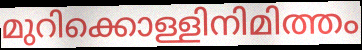
മുറിക്കൊള്ളിനിമിത്തം